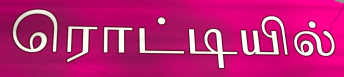
ரொட்டியில்